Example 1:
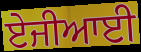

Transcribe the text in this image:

ਏਜੀਆਈ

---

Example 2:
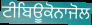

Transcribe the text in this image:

ਟੀਬਿਊਕੋਨਾਜੋਲ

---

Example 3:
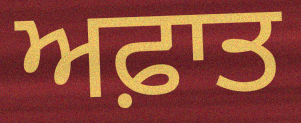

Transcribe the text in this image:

ਅਫ਼ਾਤ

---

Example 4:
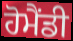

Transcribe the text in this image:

ਹੋਮੈਂਡੀ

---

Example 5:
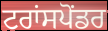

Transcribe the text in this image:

ਟਰਾਂਸਪੋਂਡਰ